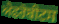
ਐਫਰੋਬੀਟਸ